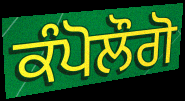
ਕੰਪੋਲੌਗੋ